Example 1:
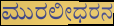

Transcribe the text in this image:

ಮುರಲೀಧರನ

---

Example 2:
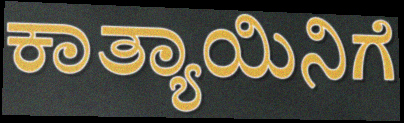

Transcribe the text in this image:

ಕಾತ್ಯಾಯಿನಿಗೆ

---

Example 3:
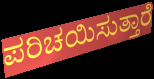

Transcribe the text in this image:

ಪರಿಚಯಿಸುತ್ತಾರೆ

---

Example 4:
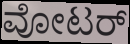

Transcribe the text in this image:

ವೋಟರ್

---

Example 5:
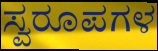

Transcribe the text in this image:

ಸ್ವರೂಪಗಳ